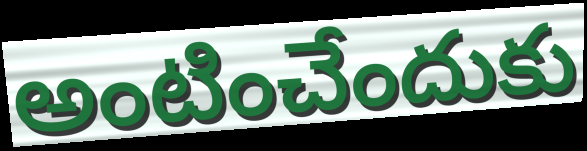
అంటించేందుకు